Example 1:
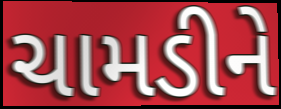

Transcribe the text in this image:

ચામડીને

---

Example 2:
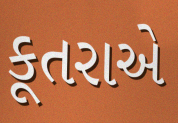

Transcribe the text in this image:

કૂતરાએ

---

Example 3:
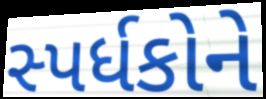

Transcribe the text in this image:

સ્પર્ધકોને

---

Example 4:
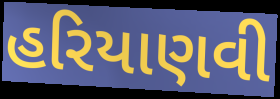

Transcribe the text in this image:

હરિયાણવી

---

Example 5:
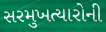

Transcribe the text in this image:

સરમુખત્યારોની